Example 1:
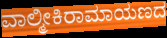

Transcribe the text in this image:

ವಾಲ್ಮೀಕಿರಾಮಾಯಣದ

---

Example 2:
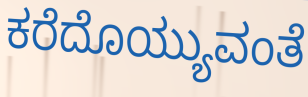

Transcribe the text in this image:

ಕರೆದೊಯ್ಯುವಂತೆ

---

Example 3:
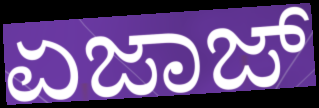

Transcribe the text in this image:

ಏಜಾಜ್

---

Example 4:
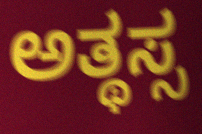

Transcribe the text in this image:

ಅತ್ಥಸ್ಸ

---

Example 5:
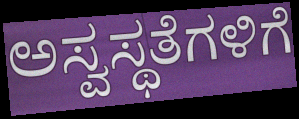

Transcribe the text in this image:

ಅಸ್ವಸ್ಥತೆಗಳಿಗೆ